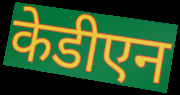
केडीएन